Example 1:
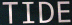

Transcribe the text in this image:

TIDE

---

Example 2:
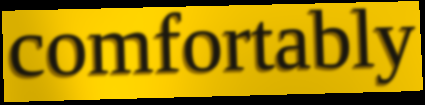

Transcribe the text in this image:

comfortably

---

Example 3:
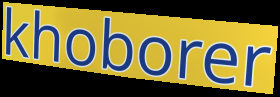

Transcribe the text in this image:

khoborer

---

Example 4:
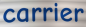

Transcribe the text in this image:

carrier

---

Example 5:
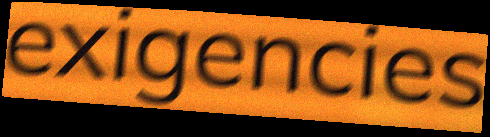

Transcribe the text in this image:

exigencies